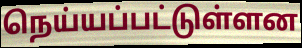
நெய்யப்பட்டுள்ளன